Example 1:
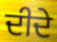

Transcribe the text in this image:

ਦੀਦੇ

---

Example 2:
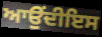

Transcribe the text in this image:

ਆਉਂਦੀਇਸ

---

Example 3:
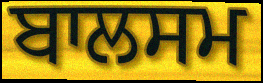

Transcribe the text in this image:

ਬਾਲਸਮ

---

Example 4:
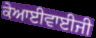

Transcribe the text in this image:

ਕੇਆਈਵਾਈਜੀ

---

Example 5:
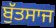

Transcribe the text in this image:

ਬੁੱਤਸਾਜ